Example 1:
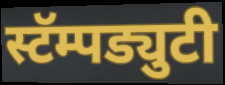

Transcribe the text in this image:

स्टॅम्पड्युटी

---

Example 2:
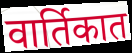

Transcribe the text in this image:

वार्तिकात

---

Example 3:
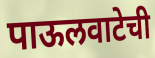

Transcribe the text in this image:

पाऊलवाटेची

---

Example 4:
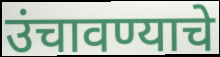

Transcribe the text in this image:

उंचावण्याचे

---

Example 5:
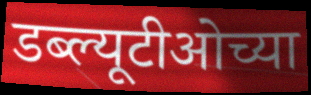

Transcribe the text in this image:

डब्ल्यूटीओच्या